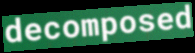
decomposed